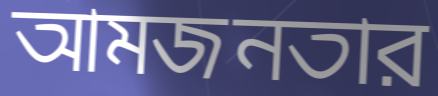
আমজনতার